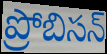
ప్రోబిసన్